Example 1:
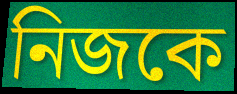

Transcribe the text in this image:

নিজকে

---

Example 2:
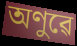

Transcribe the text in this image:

অণুৱে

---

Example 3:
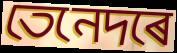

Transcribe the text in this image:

তেনেদৰে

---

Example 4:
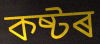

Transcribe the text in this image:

কষ্টৰ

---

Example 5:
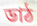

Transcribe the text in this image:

ডাঠ